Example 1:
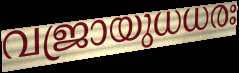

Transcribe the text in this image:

വജ്രായുധധരഃ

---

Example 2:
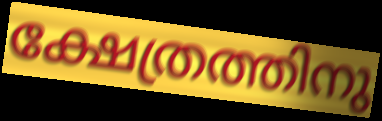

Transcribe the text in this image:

ക്ഷേത്രത്തിനു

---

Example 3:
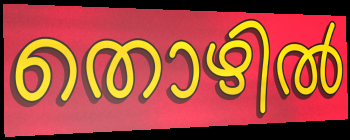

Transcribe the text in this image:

തൊഴിൽ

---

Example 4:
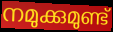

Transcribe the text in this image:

നമുക്കുമുണ്ട്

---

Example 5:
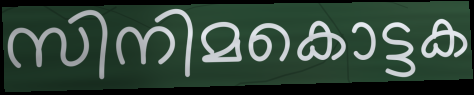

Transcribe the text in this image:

സിനിമകൊട്ടക